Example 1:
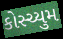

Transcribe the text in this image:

કોસ્ચ્યુમ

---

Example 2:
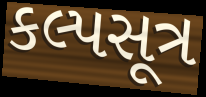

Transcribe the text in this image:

કલ્પસૂત્ર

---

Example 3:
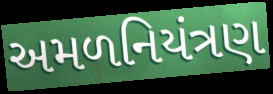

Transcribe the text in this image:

અમળનિયંત્રણ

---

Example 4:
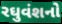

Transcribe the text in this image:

રઘુવંશનો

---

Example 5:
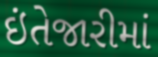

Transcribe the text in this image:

ઇંતેજારીમાં